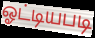
ஓட்டியபடி